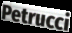
Petrucci